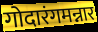
गोदारंगमन्नार